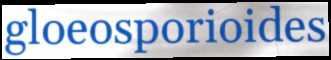
gloeosporioides